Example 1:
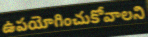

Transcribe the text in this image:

ఉపయోగించుకోవాలని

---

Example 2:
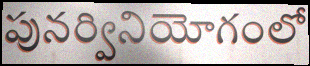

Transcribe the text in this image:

పునర్వినియోగంలో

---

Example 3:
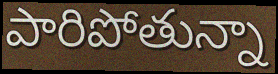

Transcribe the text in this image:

పారిపోతున్నా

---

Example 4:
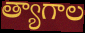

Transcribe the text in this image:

త్యాగాల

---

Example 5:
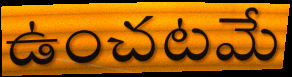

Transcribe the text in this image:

ఉంచటమే